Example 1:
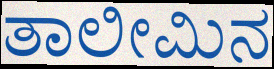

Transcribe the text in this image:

ತಾಲೀಮಿನ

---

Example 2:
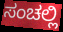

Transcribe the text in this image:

ಸಂಚಲ್ಲಿ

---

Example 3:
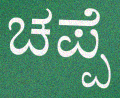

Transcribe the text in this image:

ಚಪ್ಪೆ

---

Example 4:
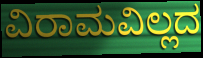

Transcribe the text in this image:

ವಿರಾಮವಿಲ್ಲದ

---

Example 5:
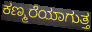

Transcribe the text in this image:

ಕಣ್ಮರೆಯಾಗುತ್ತ